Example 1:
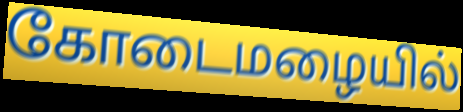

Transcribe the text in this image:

கோடைமழையில்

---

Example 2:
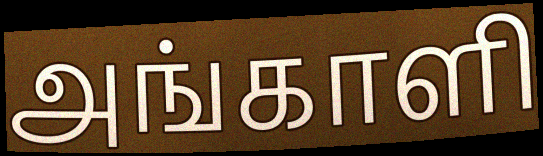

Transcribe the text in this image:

அங்காளி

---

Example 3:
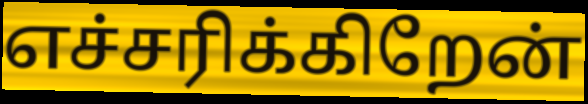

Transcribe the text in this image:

எச்சரிக்கிறேன்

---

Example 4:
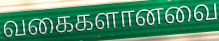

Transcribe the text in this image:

வகைகளானவை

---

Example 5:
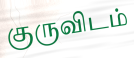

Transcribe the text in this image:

குருவிடம்